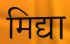
मिद्या